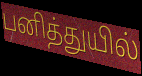
பனித்துயில்